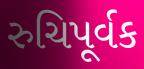
રુચિપૂર્વક